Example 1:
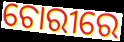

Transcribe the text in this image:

ଚୋରୀରେ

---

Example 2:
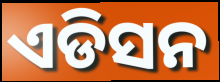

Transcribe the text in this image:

ଏଡିସନ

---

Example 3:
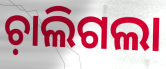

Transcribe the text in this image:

ଚ଼ାଲିଗଲା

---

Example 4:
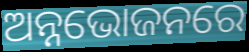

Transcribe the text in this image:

ଅନ୍ନଭୋଜନରେ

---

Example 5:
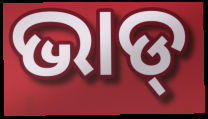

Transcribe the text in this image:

ଭାଡ୍